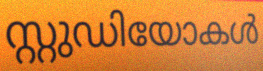
സ്റ്റുഡിയോകൾ